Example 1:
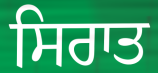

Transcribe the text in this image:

ਸਿਰਾਤ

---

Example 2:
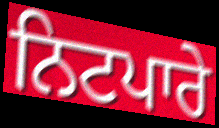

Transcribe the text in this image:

ਨਿਟਪਾਰੇ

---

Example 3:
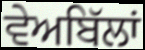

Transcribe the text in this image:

ਵੇਅਬਿੱਲਾਂ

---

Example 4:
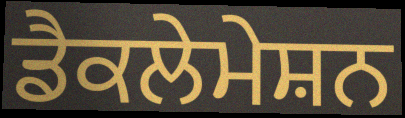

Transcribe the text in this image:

ਡੈਕਲੇਮੇਸ਼ਨ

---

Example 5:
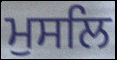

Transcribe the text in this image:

ਮੁਸਲਿ